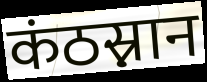
कंठस्नान